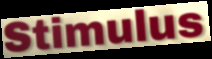
Stimulus